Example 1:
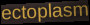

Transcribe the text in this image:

ectoplasm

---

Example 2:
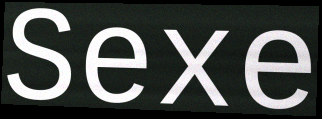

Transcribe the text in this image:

Sexe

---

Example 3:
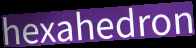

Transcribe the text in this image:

hexahedron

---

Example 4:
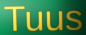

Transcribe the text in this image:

Tuus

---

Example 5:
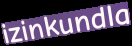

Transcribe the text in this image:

izinkundla